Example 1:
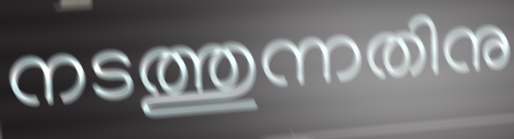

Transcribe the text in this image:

നടത്തുന്നതിനു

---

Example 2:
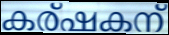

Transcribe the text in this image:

കര്ഷകന്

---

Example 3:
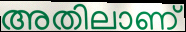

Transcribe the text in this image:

അതിലാണ്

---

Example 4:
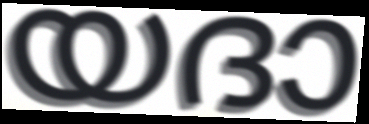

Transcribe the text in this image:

യദാ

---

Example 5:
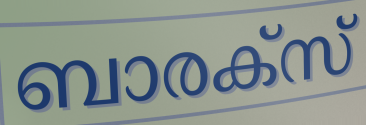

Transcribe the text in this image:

ബാരക്സ്